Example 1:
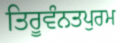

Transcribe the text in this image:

ਤਿਰੂਵੰਨਤਪੁਰਮ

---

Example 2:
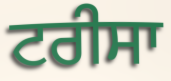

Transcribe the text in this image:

ਟਰੀਸਾ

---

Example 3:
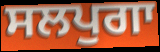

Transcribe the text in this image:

ਸਲਪੁਗਾ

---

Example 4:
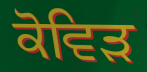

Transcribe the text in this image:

ਕੋਵਿਡ਼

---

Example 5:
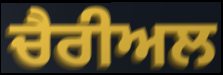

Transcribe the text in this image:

ਚੈਰੀਅਲ